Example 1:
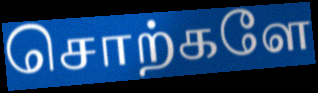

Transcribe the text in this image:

சொற்களே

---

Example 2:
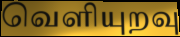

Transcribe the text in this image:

வெளியுறவு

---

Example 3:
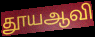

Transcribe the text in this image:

தூயஆவி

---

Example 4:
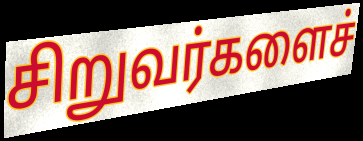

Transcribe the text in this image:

சிறுவர்களைச்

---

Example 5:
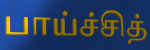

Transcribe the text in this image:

பாய்ச்சித்